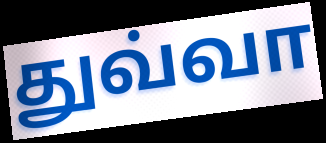
துவ்வா